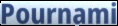
Pournami